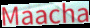
Maacha